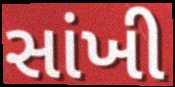
સાંખી